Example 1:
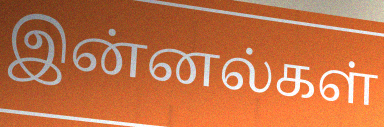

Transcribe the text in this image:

இன்னல்கள்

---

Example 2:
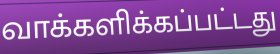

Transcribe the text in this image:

வாக்களிக்கப்பட்டது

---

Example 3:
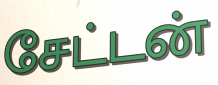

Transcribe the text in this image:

சேட்டன்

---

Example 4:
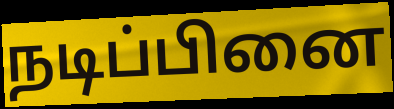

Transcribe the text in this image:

நடிப்பினை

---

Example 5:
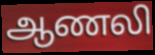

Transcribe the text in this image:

ஆணலி